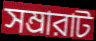
সম্রারাট